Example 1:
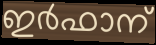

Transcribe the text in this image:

ഇർഫാന്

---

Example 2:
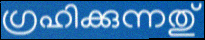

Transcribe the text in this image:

ഗ്രഹിക്കുന്നതു്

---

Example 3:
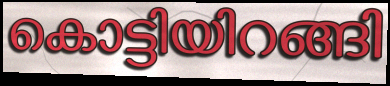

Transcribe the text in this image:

കൊട്ടിയിറങ്ങി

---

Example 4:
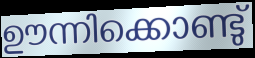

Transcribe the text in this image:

ഊന്നിക്കൊണ്ടു്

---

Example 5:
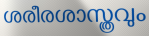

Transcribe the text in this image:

ശരീരശാസ്ത്രവും